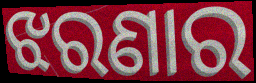
ଝରଣାର